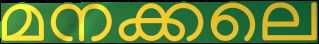
മനക്കലെ